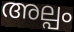
അല്പം